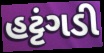
હટ્ટંગડી